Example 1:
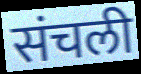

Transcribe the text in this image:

संचली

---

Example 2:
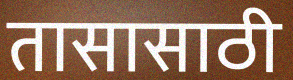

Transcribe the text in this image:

तासासाठी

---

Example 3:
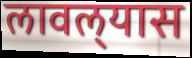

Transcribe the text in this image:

लावल्यास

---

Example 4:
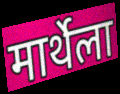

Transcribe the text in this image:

मार्थेला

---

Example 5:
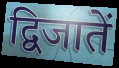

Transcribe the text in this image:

द्विजातें